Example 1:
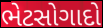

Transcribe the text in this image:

ભેટસોગાદો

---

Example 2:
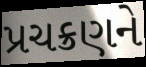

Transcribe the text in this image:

પ્રચક્રણને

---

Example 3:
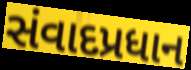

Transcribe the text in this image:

સંવાદપ્રધાન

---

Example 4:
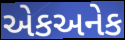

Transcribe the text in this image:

એકઅનેક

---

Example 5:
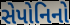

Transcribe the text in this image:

સેપોનિનો